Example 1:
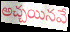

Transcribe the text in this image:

అచ్చయినవే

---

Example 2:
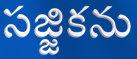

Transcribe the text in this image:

సజ్జికను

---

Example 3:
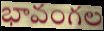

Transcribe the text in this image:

భావంగల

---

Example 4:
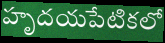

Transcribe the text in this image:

హృదయపేటికలో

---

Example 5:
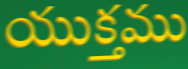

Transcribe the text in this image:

యుక్తము